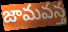
జామవన్త